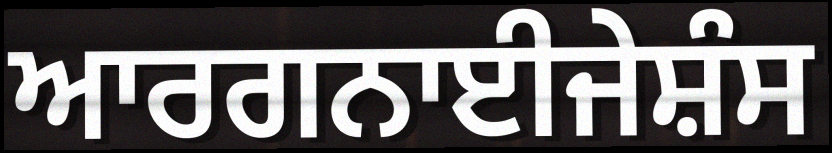
ਆਰਗਨਾਈਜੇਸ਼ੰਸ